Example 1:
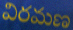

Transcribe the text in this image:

విరమణ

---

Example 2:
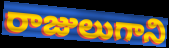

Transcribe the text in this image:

రాజులుగాని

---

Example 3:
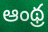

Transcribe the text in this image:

ఆంథ్ర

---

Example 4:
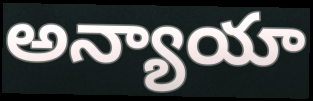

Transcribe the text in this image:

అన్యాయా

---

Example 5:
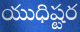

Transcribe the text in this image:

యుధిష్టర